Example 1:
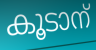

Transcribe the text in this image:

കൂടാന്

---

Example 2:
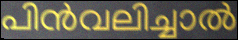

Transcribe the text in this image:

പിൻവലിച്ചാൽ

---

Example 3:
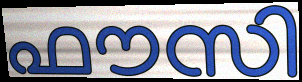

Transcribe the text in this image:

ഫൗസി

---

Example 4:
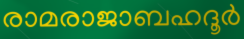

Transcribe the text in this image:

രാമരാജാബഹദൂർ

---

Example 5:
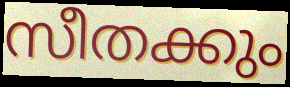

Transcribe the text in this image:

സീതക്കും